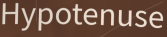
Hypotenuse